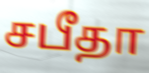
சபீதா